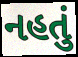
નહતું